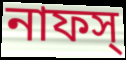
নাফস্